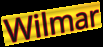
Wilmar